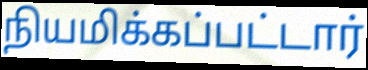
நியமிக்கப்பட்டார்